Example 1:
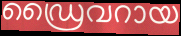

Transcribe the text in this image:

ഡ്രൈവറായ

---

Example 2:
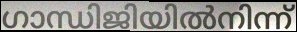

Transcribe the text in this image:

ഗാന്ധിജിയിൽനിന്ന്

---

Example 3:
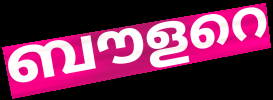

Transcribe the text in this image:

ബൗളറെ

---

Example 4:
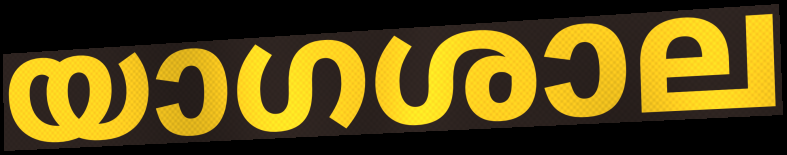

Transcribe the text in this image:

യാഗശാല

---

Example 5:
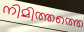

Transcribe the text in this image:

നിമിത്തത്തെ